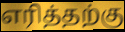
எரித்தற்கு